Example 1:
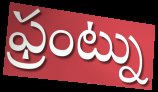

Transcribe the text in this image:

ఫ్రంట్ను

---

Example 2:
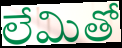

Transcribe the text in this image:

లేమితో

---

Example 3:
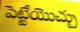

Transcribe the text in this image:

పెట్టేయొచ్చు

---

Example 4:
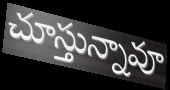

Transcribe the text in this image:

చూస్తున్నావూ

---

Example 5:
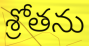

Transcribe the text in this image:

శ్రోతను